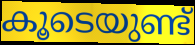
കൂടെയുണ്ട്